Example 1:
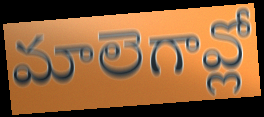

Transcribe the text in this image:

మాలెగావ్లో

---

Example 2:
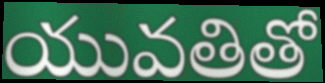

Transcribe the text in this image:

యువతితో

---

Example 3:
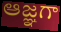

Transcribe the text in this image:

ఆజ్ఞగా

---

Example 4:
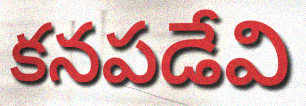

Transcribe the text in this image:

కనపడేవి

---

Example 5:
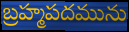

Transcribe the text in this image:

బ్రహ్మపదమును